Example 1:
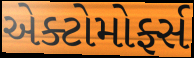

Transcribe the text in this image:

એક્ટોમોર્ફ્સ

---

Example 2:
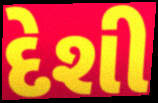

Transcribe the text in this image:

દેશી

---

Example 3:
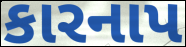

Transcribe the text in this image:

કારનાપ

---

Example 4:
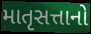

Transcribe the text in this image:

માતૃસત્તાનો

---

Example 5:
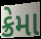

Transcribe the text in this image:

ક્રેમા